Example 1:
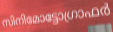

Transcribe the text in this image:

സിനിമോട്ടോഗ്രാഫർ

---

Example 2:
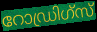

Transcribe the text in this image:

റോഡ്രിഗ്സ്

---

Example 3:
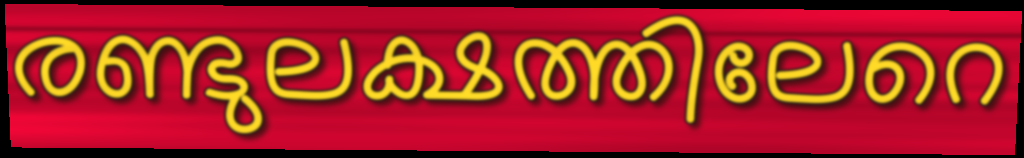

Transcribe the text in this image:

രണ്ടുലക്ഷത്തിലേറെ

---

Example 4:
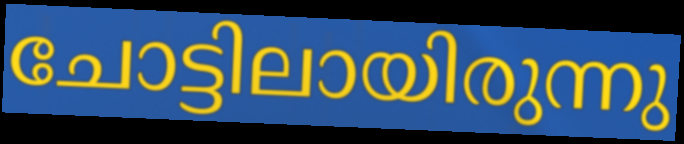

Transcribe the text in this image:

ചോട്ടിലായിരുന്നു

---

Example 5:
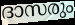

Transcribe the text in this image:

ദാസരും